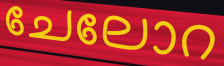
ചേലോറ